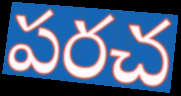
పరచ